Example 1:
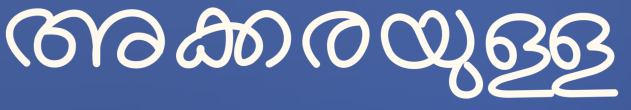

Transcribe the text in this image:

അക്കരയുള്ള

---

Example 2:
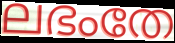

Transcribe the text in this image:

ലഭംതേ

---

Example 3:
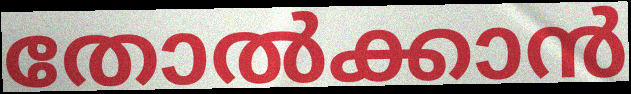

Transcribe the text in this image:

തോൽക്കാൻ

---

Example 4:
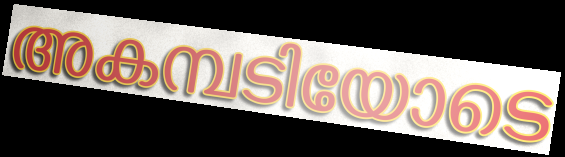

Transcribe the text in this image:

അകമ്പടിയോടെ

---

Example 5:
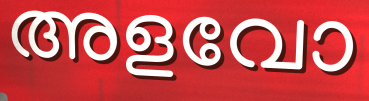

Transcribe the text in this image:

അളവോ